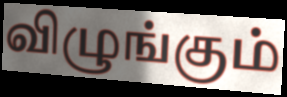
விழுங்கும்